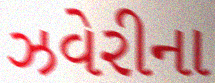
ઝવેરીના